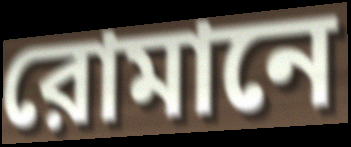
রোমানে